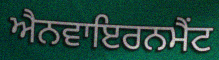
ਐਨਵਾਇਰਨਮੈਂਟ